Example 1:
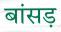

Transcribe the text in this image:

बांसड़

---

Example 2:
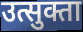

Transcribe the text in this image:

उत्सुक्ता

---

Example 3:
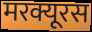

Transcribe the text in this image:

मरक्यूरस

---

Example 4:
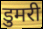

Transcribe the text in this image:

डुमरी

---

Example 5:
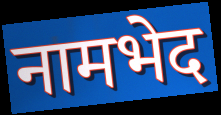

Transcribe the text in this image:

नामभेद